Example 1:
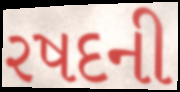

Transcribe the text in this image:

રષદની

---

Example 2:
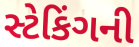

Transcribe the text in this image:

સ્ટેકિંગની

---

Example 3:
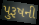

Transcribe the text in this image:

પુરૂષની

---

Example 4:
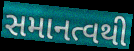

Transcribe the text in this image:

સમાનત્વથી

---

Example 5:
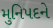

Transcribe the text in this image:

મુનિપદને